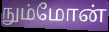
நும்மோன்